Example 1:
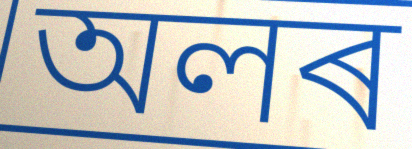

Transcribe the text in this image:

অলৰ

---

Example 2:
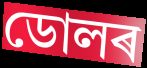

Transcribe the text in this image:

ডোলৰ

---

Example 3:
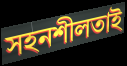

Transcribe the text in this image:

সহনশীলতাই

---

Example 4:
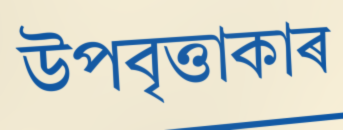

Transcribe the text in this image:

উপবৃত্তাকাৰ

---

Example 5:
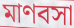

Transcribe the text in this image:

মাণবসা